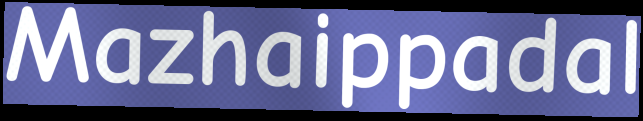
Mazhaippadal